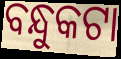
ବନ୍ଧୁକଟା